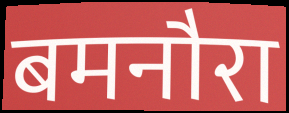
बमनौरा